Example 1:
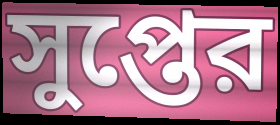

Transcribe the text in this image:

সুপ্তের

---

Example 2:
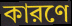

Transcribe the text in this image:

কারণে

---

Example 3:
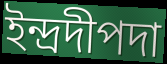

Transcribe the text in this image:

ইন্দ্রদীপদা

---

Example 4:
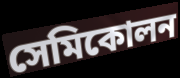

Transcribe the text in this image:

সেমিকোলন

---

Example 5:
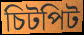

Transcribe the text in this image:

চিটপিট